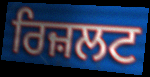
ਰਿਜ਼ਲਟ